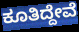
ಕೂತಿದ್ದೇವೆ